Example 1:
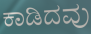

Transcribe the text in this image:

ಕಾಡಿದವು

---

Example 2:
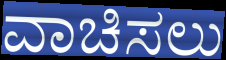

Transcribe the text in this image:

ವಾಚಿಸಲು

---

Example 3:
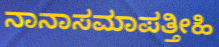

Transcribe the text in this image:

ನಾನಾಸಮಾಪತ್ತೀಹಿ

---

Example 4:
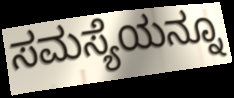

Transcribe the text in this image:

ಸಮಸ್ಯೆಯನ್ನೂ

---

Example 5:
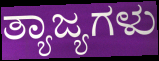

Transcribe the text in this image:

ತ್ಯಾಜ್ಯಗಳು